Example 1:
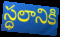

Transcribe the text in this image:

స్ధలానికి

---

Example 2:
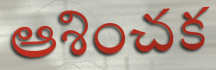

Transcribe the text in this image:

ఆశించక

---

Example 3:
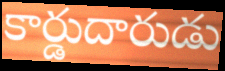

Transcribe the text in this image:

కార్డుదారుడు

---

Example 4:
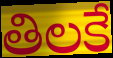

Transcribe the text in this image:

తిలకే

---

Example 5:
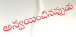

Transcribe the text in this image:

అన్వయించినప్పుడు